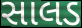
સાલડ